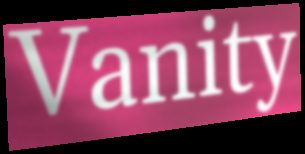
Vanity